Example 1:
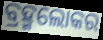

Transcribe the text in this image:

ବ୍ରହ୍ମଲୋକର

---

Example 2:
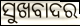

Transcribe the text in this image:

ସୁଖବାଦର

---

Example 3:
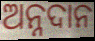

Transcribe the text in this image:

ଅନ୍ନଦାନ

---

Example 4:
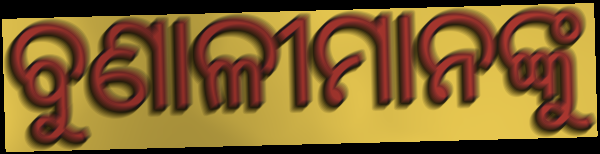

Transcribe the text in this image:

ବୁଣାଳୀମାନଙ୍କୁ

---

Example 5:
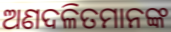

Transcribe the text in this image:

ଅଣଦଳିତମାନଙ୍କ